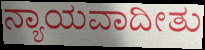
ನ್ಯಾಯವಾದೀತು